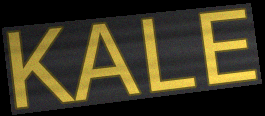
KALE